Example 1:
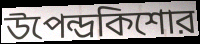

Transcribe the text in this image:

উপেন্দ্রকিশোর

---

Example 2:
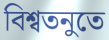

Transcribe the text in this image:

বিশ্বতনুতে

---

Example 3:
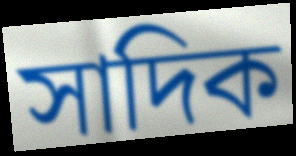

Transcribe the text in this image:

সাদিক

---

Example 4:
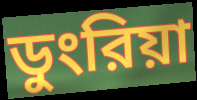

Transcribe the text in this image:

ডুংরিয়া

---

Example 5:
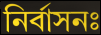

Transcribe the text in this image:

নির্বাসনঃ